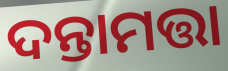
ଦନ୍ତାମତ୍ତା